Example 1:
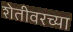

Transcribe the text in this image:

शेतीवरच्या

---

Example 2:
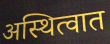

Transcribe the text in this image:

अस्थित्वात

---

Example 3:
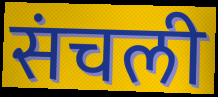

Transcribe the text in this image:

संचली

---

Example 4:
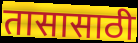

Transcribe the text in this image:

तासासाठी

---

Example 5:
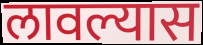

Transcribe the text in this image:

लावल्यास